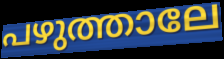
പഴുത്താലേ